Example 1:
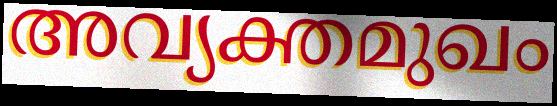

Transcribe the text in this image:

അവ്യക്തമുഖം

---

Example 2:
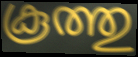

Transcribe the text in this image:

കൂത്തു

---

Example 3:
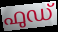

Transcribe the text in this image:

ഫുഡ്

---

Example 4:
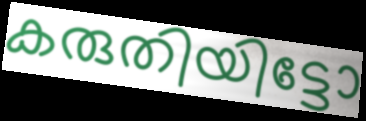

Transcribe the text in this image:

കരുതിയിട്ടോ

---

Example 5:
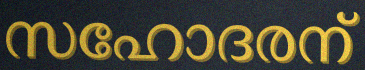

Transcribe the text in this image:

സഹോദരന്